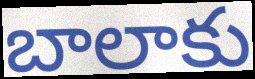
బాలాకు